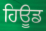
ਹਿਊਡ